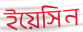
ইয়েসিন